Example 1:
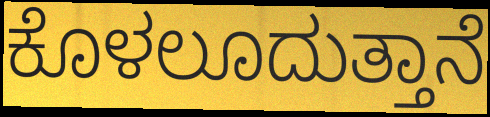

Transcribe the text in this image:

ಕೊಳಲೂದುತ್ತಾನೆ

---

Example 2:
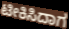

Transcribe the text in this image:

ಟೀಕಿಸಿದಾಗ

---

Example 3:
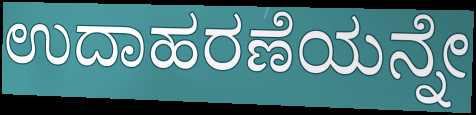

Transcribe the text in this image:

ಉದಾಹರಣೆಯನ್ನೇ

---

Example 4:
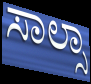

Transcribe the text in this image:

ಸಾಲ್ಸಾ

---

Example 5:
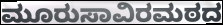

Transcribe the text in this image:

ಮೂರುಸಾವಿರಮಠದ